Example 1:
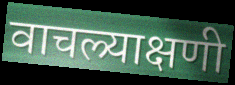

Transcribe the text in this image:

वाचल्याक्षणी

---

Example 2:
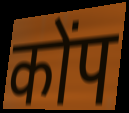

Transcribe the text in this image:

कोंप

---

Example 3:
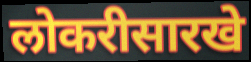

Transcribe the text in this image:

लोकरीसारखे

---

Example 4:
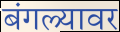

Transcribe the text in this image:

बंगल्यावर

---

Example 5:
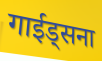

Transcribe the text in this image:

गाईड्सना